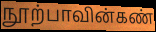
நூற்பாவின்கண்